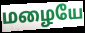
மழையே